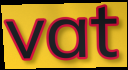
vat